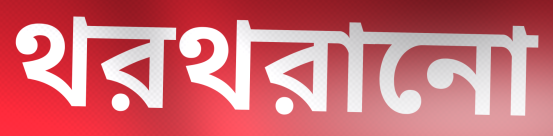
থরথরানো